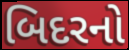
બિદરનો